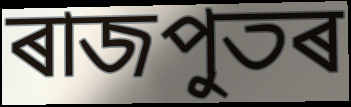
ৰাজপুতৰ